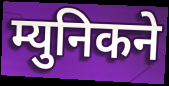
म्युनिकने